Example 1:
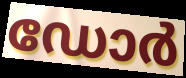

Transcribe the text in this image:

ഡോർ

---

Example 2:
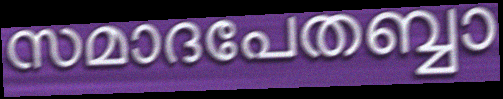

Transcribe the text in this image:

സമാദപേതബ്ബാ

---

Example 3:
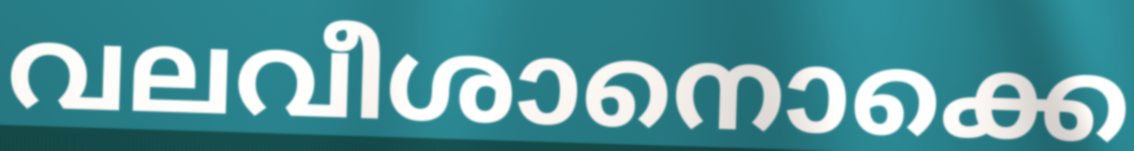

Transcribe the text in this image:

വലവീശാനൊക്കെ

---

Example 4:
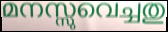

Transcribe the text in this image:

മനസ്സുവെച്ചതു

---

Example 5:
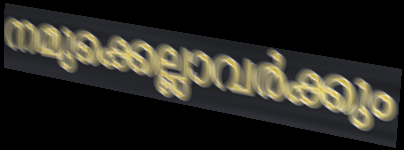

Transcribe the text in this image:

നമുക്കെല്ലാവർക്കും